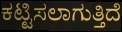
ಕಟ್ಟಿಸಲಾಗುತ್ತಿದೆ